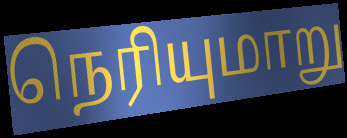
நெரியுமாறு